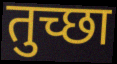
तुच्छा